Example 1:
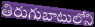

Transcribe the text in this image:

తిరుగుబాటులోని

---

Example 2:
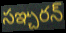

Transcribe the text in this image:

సఞ్చరన్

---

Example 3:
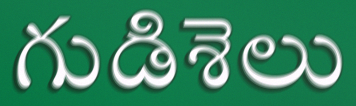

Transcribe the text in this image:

గుడిశెలు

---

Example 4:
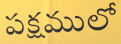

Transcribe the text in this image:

పక్షములో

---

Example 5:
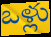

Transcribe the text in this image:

ఒళ్లు